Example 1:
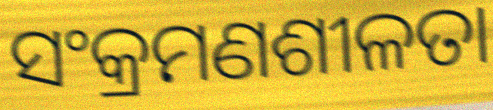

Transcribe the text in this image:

ସଂକ୍ରମଣଶୀଳତା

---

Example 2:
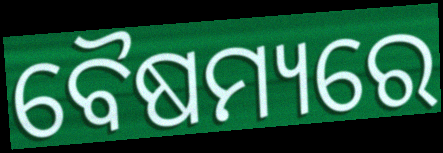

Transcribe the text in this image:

ବୈଷମ୍ୟରେ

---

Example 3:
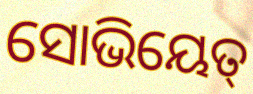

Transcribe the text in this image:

ସୋଭିୟେତ୍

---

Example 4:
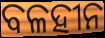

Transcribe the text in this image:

ବଳହୀନ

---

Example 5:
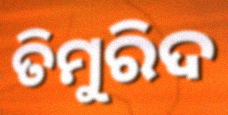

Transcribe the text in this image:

ତିମୁରିଦ